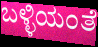
ಬಳ್ಳಿಯಂತೆ